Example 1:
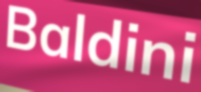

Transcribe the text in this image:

Baldini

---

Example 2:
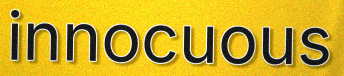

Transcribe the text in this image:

innocuous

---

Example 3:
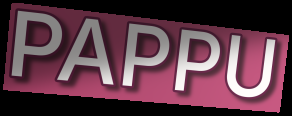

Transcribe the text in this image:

PAPPU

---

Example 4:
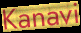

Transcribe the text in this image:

Kanavi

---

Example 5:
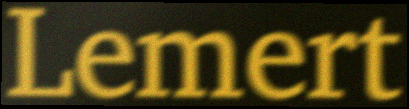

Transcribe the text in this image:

Lemert